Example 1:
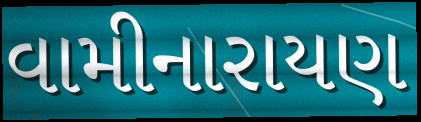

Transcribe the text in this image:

વામીનારાયણ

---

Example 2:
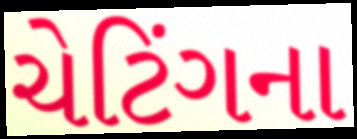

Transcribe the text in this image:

ચેટિંગના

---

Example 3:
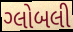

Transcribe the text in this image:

ગ્લોબલી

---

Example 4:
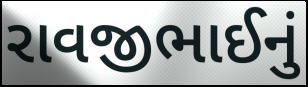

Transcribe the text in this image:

રાવજીભાઈનું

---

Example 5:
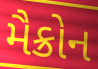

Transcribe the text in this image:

મૈક્રોન